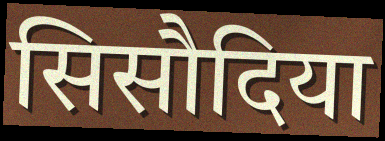
सिसौदिया